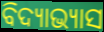
ବିଦ୍ୟାଭ୍ୟାସ